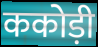
ककोड़ी